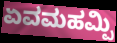
ಏವಮಹಮ್ಪಿ